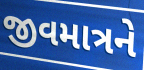
જીવમાત્રને